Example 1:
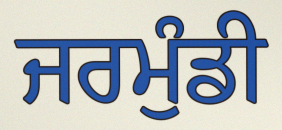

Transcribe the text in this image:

ਜਰਮੁੰਡੀ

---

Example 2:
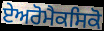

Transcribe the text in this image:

ਏਅਰੋਮੈਕਸਿਕੋ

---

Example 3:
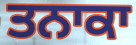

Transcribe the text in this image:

ਤਨਾਕਾ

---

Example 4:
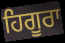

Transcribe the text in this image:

ਹਿਗੂਰਾ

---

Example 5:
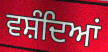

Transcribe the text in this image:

ਵਸ਼ੰਦਿਆਂ